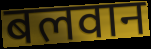
बलवान